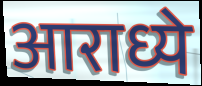
आराध्ये